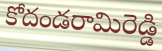
కోదండరామిరెడ్డి